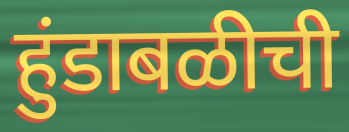
हुंडाबळीची